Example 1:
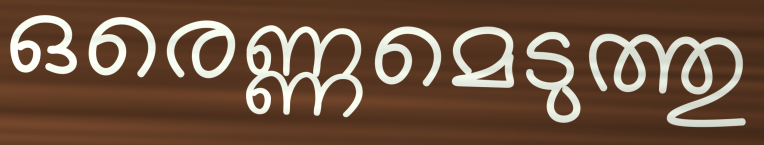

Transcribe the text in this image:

ഒരെണ്ണമെടുത്തു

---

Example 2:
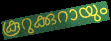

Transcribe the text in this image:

കൂറുക്കുറായും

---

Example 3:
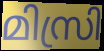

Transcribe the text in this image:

മിസ്രി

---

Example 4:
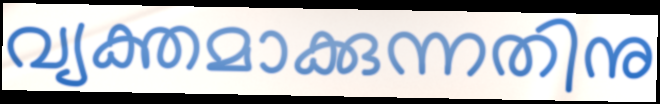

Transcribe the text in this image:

വ്യക്തമാക്കുന്നതിനു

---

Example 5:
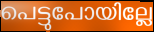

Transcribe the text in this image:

പെട്ടുപോയില്ലേ